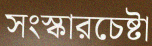
সংস্কারচেষ্টা